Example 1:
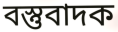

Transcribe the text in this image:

বস্তুবাদক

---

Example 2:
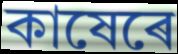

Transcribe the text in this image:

কাষেৰে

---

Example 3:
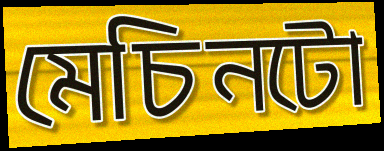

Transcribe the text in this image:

মেচিনটো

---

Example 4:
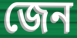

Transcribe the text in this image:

জেন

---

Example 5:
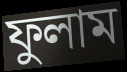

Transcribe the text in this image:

ফুলাম